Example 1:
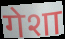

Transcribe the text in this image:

गेशा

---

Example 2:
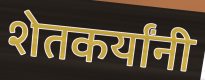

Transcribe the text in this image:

शेतकर्यांनी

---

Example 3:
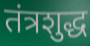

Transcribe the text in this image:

तंत्रशुद्ध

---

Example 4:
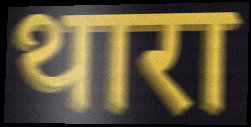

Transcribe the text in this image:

थारा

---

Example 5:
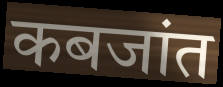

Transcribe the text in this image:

कबजांत